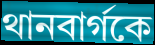
থানবার্গকে